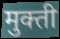
मुक्ती